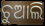
ଚୁଆଲି